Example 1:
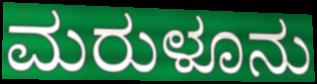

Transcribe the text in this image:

ಮರುಳೂನು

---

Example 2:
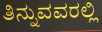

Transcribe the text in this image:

ತಿನ್ನುವವರಲ್ಲಿ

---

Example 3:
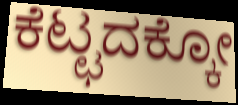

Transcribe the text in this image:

ಕೆಟ್ಟದಕ್ಕೋ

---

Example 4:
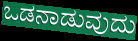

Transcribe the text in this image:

ಒಡನಾಡುವುದು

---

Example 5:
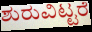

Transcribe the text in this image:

ಶುರುವಿಟ್ಟರೆ